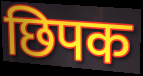
छिपक